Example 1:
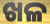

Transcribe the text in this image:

ଖଳ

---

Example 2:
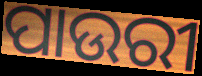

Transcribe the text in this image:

ପାଉରୀ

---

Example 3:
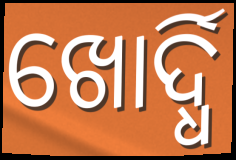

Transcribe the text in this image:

ଖୋର୍ଦ୍ଧି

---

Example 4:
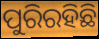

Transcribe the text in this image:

ପୁରିରହିଛି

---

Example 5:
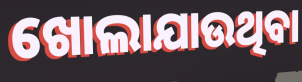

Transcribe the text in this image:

ଖୋଲାଯାଉଥିବା